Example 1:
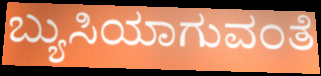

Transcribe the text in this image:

ಬ್ಯುಸಿಯಾಗುವಂತೆ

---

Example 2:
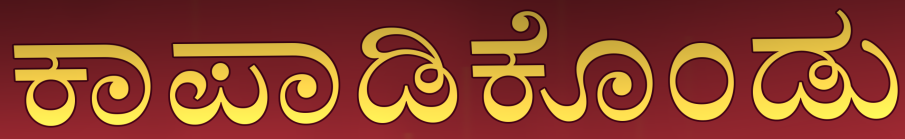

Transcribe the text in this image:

ಕಾಪಾಡಿಕೊಂಡು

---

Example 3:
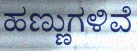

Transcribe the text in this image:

ಹಣ್ಣುಗಳಿವೆ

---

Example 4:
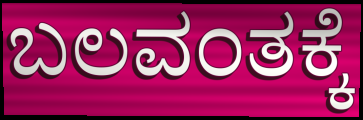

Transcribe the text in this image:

ಬಲವಂತಕ್ಕೆ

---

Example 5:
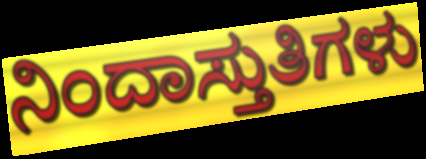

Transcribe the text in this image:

ನಿಂದಾಸ್ತುತಿಗಳು